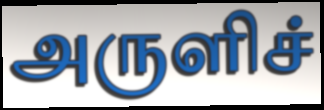
அருளிச்